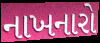
નાખનારો